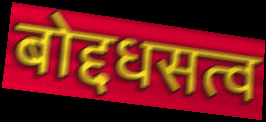
बोद्दधसत्व